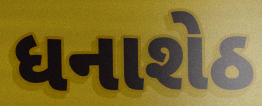
ધનાશેઠ